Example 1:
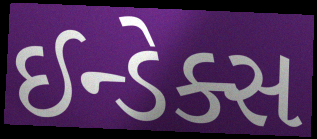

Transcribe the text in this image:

ઈન્ડેક્સ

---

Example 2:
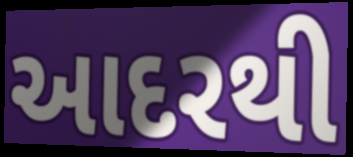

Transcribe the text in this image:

આદરથી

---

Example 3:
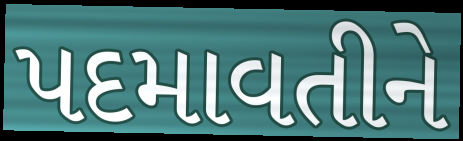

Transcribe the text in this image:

પદમાવતીને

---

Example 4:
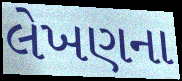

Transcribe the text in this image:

લેખણના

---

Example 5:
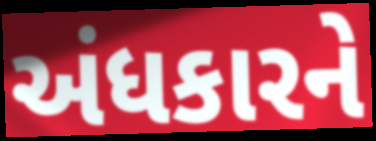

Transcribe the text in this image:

અંધકારને